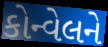
કોન્વેલને